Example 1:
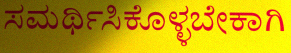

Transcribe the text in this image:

ಸಮರ್ಥಿಸಿಕೊಳ್ಳಬೇಕಾಗಿ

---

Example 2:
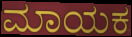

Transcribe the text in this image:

ಮಾಯಕ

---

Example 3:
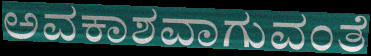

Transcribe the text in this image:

ಅವಕಾಶವಾಗುವಂತೆ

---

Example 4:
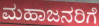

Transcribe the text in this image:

ಮಹಾಜನರಿಗೆ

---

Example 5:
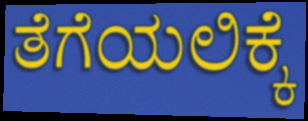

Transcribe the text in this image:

ತೆಗೆಯಲಿಕ್ಕೆ